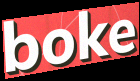
boke